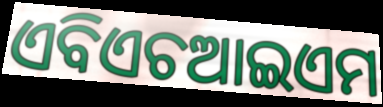
ଏବିଏଚଆଇଏମ